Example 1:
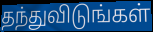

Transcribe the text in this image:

தந்துவிடுங்கள்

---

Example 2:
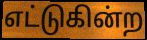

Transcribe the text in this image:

எட்டுகின்ற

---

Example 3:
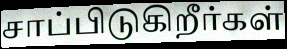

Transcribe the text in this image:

சாப்பிடுகிறீர்கள்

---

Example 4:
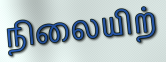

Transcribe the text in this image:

நிலையிற்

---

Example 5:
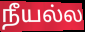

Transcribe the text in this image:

நீயல்ல